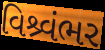
વિશ્ર્વંભર